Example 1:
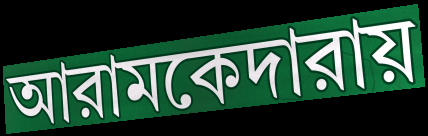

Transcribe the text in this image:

আরামকেদারায়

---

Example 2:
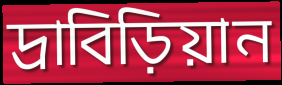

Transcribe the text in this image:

দ্রাবিড়িয়ান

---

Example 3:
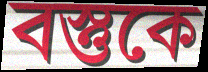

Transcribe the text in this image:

বস্তুকে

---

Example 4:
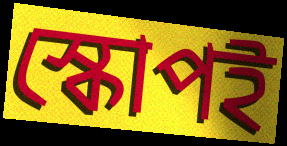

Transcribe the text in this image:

স্কোপই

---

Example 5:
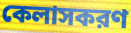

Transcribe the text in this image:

কেলাসকরণ